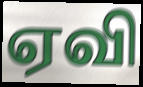
ஏவி